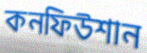
কনফিউশান